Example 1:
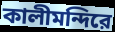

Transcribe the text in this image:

কালীমন্দিরে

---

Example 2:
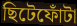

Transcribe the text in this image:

ছিটেফোঁটা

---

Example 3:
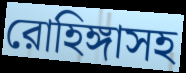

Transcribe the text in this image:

রোহিঙ্গাসহ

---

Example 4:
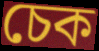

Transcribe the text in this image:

চেক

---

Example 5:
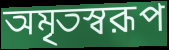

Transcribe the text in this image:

অমৃতস্বরূপ